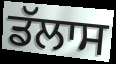
ਡੱਲਾਸ